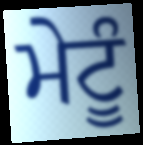
ਮੇਟੂੰ